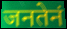
जनतेनं